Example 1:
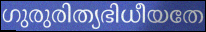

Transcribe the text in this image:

ഗുരുരിത്യഭിധീയതേ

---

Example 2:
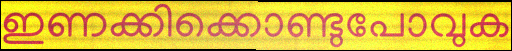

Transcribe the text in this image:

ഇണക്കിക്കൊണ്ടുപോവുക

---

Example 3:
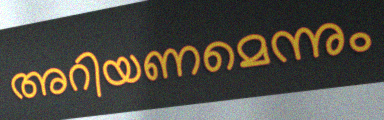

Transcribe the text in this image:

അറിയണമെന്നും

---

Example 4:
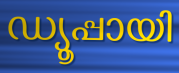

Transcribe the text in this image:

ഡ്യൂപ്പായി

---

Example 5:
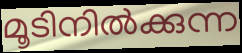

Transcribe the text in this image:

മൂടിനിൽക്കുന്ന